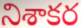
నిశాకర